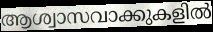
ആശ്വാസവാക്കുകളിൽ